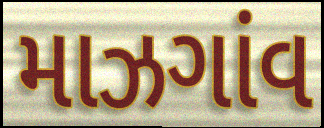
માઝગાંવ